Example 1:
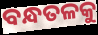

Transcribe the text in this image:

ବନ୍ଧତଳକୁ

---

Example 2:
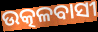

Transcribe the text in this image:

ଉତ୍କଳବାସୀ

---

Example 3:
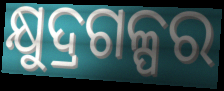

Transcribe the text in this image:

କ୍ଷୁଦ୍ରଗଳ୍ପର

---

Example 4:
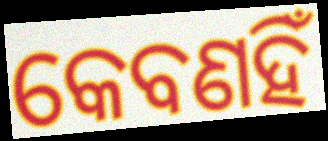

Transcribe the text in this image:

କେବଣହିଁ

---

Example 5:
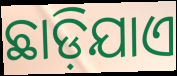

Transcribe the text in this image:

ଛାଡ଼ିଯାଏ